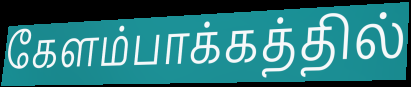
கேளம்பாக்கத்தில்